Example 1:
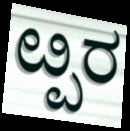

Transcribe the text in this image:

ೞ್ಪರ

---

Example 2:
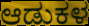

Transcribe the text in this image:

ಆಡುಕಳ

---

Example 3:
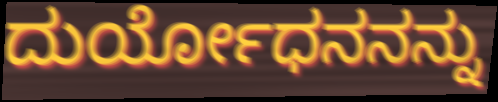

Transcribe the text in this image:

ದುರ್ಯೋಧನನನ್ನು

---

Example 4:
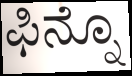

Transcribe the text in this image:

ಫಿನ್ನೊ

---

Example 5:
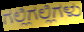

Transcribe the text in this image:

ಗಲ್ಲಿಗಲ್ಲಿಗಳು